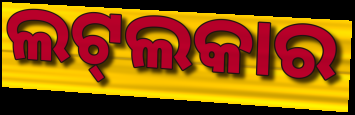
ଲଟ୍‌ଲକାର